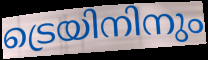
ട്രെയിനിനും